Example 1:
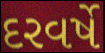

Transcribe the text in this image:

દરવર્ષે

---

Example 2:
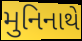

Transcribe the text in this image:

મુનિનાથે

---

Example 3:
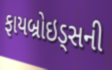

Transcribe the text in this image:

ફાયબ્રોઇડ્સની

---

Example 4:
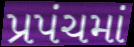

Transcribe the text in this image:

પ્રપંચમાં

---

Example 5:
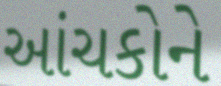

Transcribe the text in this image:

આંચકોને